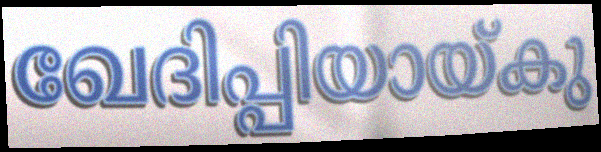
ഖേദിപ്പിയായ്കു